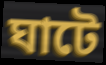
ঘাটে